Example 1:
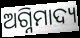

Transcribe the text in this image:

ଅଗ୍ନିମାଦ୍ୟ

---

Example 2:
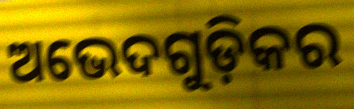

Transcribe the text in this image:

ଅଭେଦଗୁଡ଼ିକର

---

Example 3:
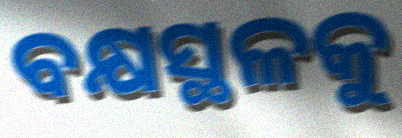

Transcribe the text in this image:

ବକ୍ଷସ୍ଥଳକୁ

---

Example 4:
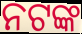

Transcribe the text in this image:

ନଟଙ୍କ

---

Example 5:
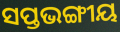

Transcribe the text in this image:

ସପ୍ତଭଙ୍ଗୀୟ